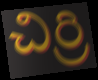
చిర్రి